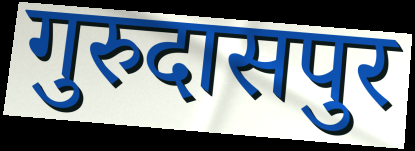
गुरुदासपुर